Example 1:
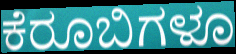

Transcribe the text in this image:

ಕೆರೂಬಿಗಳೂ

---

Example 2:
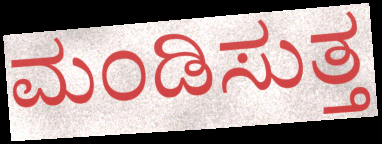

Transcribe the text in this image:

ಮಂಡಿಸುತ್ತ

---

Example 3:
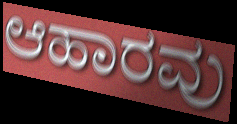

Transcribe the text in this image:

ಆಹಾರವು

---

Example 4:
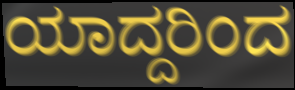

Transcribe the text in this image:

ಯಾದ್ದರಿಂದ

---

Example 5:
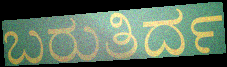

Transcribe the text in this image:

ಬರುತಿರ್ದ